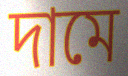
দামে